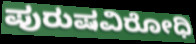
ಪುರುಷವಿರೋಧಿ